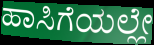
ಹಾಸಿಗೆಯಲ್ಲೇ